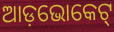
ଆଡ଼ଭୋକେଟ୍